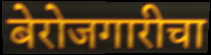
बेरोजगारीचा